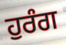
ਹੁਰੰਗ